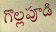
గొల్లపూడి